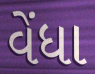
વેંધા